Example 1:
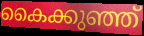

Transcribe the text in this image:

കൈക്കുഞ്ഞ്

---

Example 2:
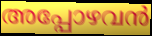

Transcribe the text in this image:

അപ്പോഴവൻ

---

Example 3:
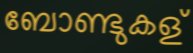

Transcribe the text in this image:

ബോണ്ടുകള്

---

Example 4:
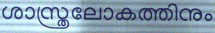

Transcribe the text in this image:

ശാസ്ത്രലോകത്തിനും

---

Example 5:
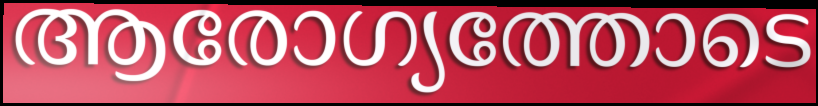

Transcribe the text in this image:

ആരോഗ്യത്തോടെ